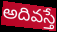
అదివస్తే